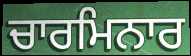
ਚਾਰਮਿਨਾਰ